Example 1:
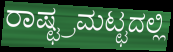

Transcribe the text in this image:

ರಾಷ್ಟ್ರಮಟ್ಟದಲ್ಲಿ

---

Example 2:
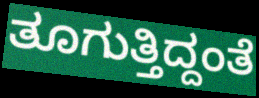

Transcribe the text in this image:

ತೂಗುತ್ತಿದ್ದಂತೆ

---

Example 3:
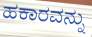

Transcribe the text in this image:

ಹಕಾರವನ್ನು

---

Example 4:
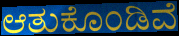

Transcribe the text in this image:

ಆತುಕೊಂಡಿವೆ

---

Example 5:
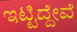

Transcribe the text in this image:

ಇಟ್ಟಿದ್ದೇವೆ